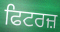
ਫਿਟਰਜ਼